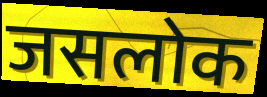
जसलोक